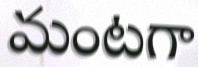
మంటగా